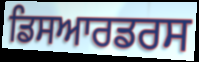
ਡਿਸਆਰਡਰਸ